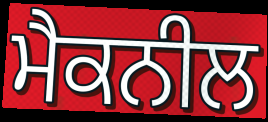
ਮੈਕਨੀਲ